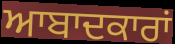
ਆਬਾਦਕਾਰਾਂ